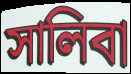
সালিবা